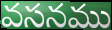
వసనము